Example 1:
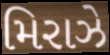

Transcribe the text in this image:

મિરાઝે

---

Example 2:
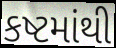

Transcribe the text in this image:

કષ્ટમાંથી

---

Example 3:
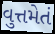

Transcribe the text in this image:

વુત્તમેતં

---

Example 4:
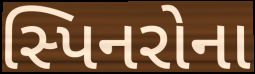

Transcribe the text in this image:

સ્પિનરોના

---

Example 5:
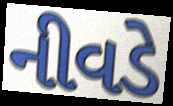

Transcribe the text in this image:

નીવડે